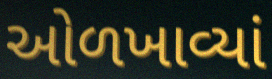
ઓળખાવ્યાં